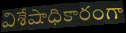
విశేషాధికారంగా